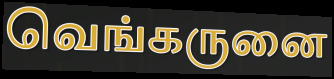
வெங்கருனை